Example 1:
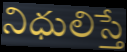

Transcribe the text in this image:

నిధులిస్తే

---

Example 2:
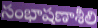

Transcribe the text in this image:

సంభాషణాశీలి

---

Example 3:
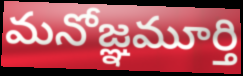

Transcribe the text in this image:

మనోజ్ఞమూర్తి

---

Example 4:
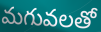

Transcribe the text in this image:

మగువలతో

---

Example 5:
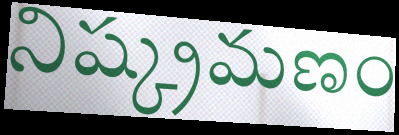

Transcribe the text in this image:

నిష్క్రమణం